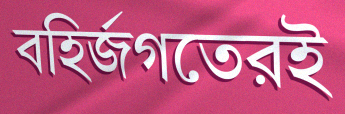
বহির্জগতেরই